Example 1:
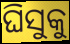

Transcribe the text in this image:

ଘିସୁକୁ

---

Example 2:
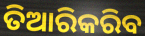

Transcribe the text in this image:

ତିଆରିକରିବ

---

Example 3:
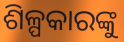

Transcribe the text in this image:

ଶିଳ୍ପକାରଙ୍କୁ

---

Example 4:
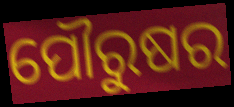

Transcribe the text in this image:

ପୌରୁଷର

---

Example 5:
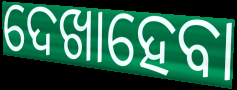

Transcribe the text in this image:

ଦେଖାହେବା